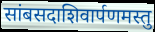
सांबसदाशिवार्पणमस्तु